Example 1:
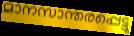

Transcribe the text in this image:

മാനസാന്തരപ്പെട്ടു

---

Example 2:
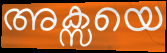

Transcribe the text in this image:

അക്സയെ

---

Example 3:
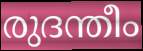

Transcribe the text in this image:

രുദന്തീം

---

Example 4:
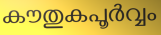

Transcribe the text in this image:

കൗതുകപൂർവ്വം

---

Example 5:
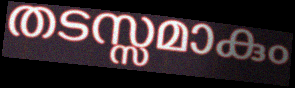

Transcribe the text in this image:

തടസ്സമാകും